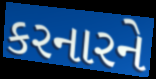
કરનારને